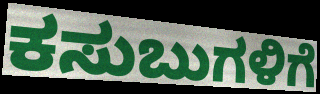
ಕಸುಬುಗಳಿಗೆ